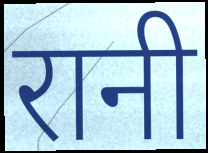
रानी